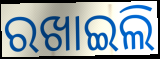
ରଖାଇଲି